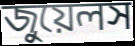
জুয়েলস